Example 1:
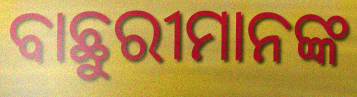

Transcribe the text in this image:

ବାଛୁରୀମାନଙ୍କ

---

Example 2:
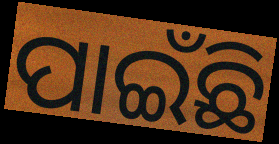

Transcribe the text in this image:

ପାଇଁଛି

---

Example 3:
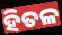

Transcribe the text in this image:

ହିତଳ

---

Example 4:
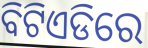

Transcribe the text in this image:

ବିଟିଏଡିରେ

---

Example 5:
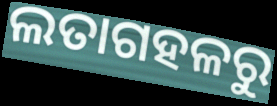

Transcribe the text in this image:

ଲତାଗହଳରୁ